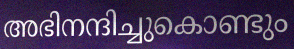
അഭിനന്ദിച്ചുകൊണ്ടും